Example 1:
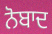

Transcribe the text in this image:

ਨੋਬਾਦ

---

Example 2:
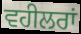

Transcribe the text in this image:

ਵਹੀਲਰਾਂ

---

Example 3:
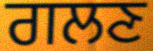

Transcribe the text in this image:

ਗਲਣ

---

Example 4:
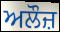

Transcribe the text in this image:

ਅਲੌਜ਼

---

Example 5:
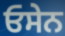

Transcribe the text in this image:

ਓਸੇਨ